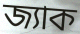
জ্যাক